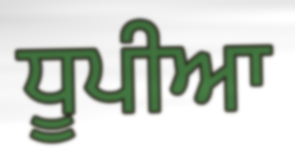
ਧੂਪੀਆ